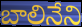
బాలినేని